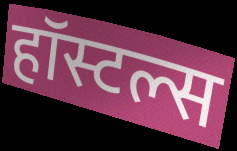
हॉस्टल्स